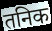
तनिक